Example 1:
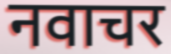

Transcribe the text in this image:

नवाचर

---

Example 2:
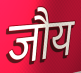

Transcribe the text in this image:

जौय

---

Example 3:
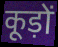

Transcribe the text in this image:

कूड़ों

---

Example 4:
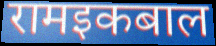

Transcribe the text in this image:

रामइकबाल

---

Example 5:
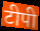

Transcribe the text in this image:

टीपी